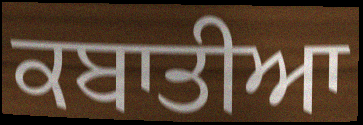
ਕਬਾਤੀਆ